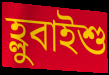
হ্লুবাইশু